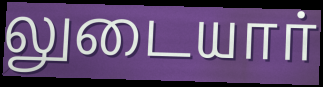
லுடையார்